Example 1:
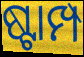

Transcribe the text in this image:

ଷ୍ଟାମ୍ପ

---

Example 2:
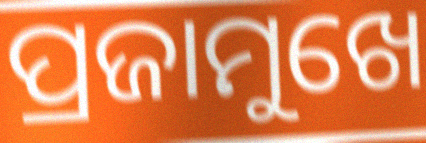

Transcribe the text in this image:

ପ୍ରଜାମୁଖେ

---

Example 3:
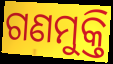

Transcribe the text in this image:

ଗଣମୁକ୍ତି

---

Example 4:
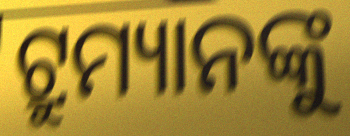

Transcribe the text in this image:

ଟ୍ରୁମ୍ୟାନଙ୍କୁ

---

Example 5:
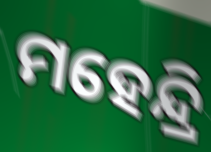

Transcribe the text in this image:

ମହେନ୍ଦ୍ରି